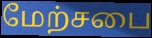
மேற்சபை